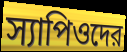
স্যাপিওদের